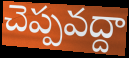
చెప్పవద్దా